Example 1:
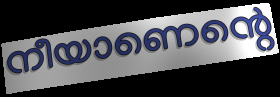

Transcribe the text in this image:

നീയാണെന്റെ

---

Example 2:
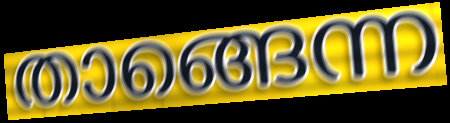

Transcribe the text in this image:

താങ്ങെന്ന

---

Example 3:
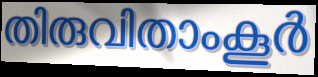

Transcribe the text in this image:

തിരുവിതാംകൂർ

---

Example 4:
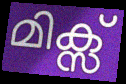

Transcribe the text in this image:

മിക്സ്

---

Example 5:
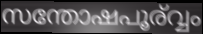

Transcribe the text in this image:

സന്തോഷപൂര്വ്വം